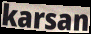
karsan